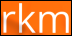
rkm